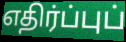
எதிர்ப்புப்